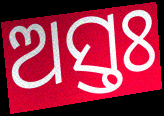
ଅସ୍ତଃ